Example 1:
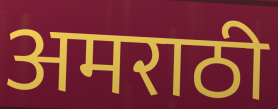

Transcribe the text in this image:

अमराठी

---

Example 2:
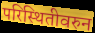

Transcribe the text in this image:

परिस्थितीवरुन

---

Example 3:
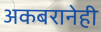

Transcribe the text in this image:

अकबरानेही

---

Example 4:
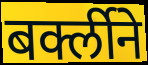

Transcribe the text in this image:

बर्क्लीने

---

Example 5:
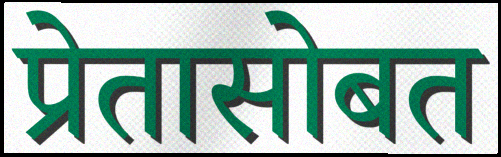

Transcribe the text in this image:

प्रेतासोबत